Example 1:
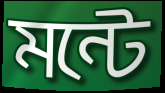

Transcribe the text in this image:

মন্টে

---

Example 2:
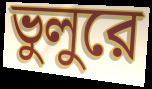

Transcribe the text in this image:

ভুলুরে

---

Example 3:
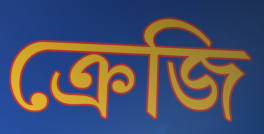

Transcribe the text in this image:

ক্রেজি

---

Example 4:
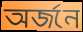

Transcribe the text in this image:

অর্জনে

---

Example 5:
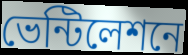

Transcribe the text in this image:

ভেন্টিলেশনে